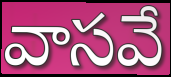
వాసవే